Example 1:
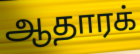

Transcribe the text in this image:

ஆதாரக்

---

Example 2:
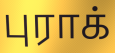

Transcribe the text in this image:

புராக்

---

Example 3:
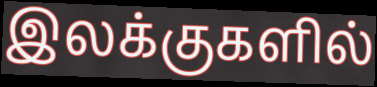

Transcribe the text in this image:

இலக்குகளில்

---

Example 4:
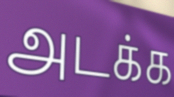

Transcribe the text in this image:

அடக்க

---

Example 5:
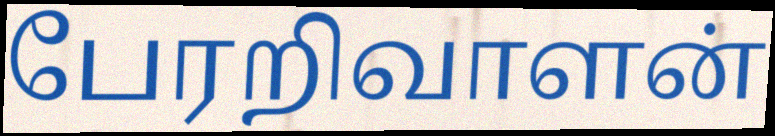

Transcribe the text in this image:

பேரறிவாளன்